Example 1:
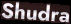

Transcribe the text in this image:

Shudra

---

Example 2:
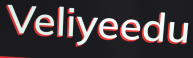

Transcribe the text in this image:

Veliyeedu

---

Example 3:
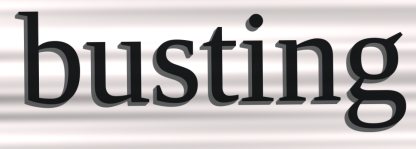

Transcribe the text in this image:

busting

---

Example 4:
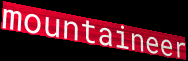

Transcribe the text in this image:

mountaineer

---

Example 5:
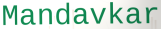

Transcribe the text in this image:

Mandavkar